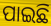
ପାଇଛି